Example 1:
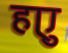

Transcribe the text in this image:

हएु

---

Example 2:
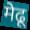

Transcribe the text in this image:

मेढू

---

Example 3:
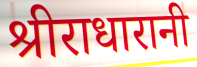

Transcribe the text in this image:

श्रीराधारानी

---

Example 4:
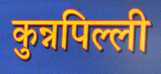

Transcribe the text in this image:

कुन्नपिल्ली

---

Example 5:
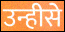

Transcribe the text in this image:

उन्हीसे